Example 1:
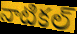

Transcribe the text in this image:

నాటికల్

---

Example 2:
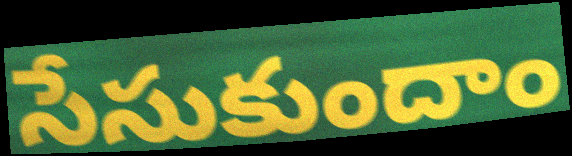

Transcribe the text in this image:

సేసుకుందాం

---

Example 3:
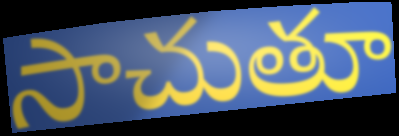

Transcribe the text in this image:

సాచుతూ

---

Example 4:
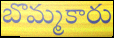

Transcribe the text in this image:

బొమ్మకారు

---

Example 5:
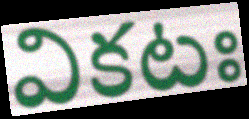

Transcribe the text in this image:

వికటః